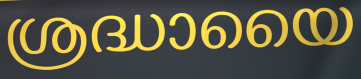
ശ്രദ്ധായൈ